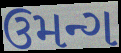
ઉમન્ગ